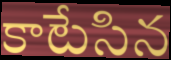
కాటేసిన